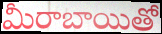
మీరాబాయితో